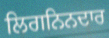
ਲਿਗਨਿਨਦਾਰ